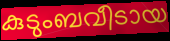
കുടുംബവീടായ